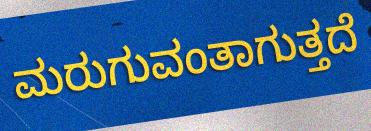
ಮರುಗುವಂತಾಗುತ್ತದೆ